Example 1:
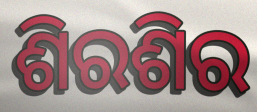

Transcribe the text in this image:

ଶିରଶିର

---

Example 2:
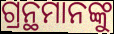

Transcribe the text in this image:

ଗ୍ରନ୍ଥମାନଙ୍କୁ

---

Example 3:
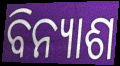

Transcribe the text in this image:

ବିନ୍ୟାଶ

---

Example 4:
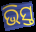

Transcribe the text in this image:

ଭିସ୍ତ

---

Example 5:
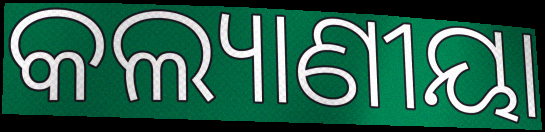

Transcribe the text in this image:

କଲ୍ୟାଣୀୟା